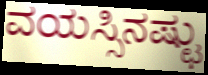
ವಯಸ್ಸಿನಷ್ಟು